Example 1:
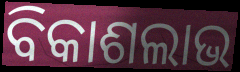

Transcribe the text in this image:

ବିକାଶଲାଭ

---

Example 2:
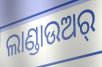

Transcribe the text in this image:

ଲାଣ୍ଡାଉଅର୍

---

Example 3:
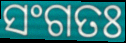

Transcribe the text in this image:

ସଂଗତଃ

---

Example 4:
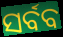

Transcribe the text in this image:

ସର୍ବବ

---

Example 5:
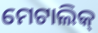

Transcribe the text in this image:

ମେଟାଲିକ୍